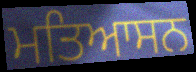
ਮਤਿਆਸਨ